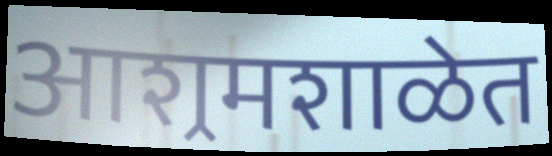
आश्रमशाळेत